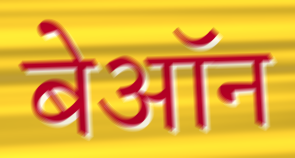
बेऑन